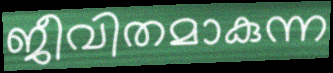
ജീവിതമാകുന്ന